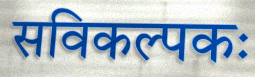
सविकल्पकः